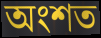
অংশত